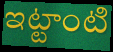
ఇట్టాంటి